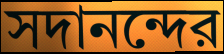
সদানন্দের